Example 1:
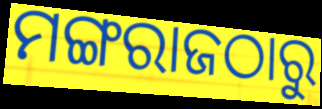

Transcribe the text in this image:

ମଙ୍ଗରାଜଠାରୁ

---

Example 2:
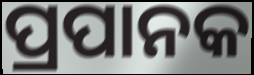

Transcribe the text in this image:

ପ୍ରପାନକ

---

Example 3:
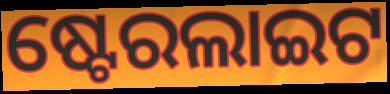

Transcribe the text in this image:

ଷ୍ଟେରଲାଇଟ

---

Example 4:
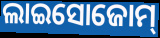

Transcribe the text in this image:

ଲାଇସୋଜୋମ୍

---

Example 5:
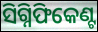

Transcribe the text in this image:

ସିଗ୍ନିଫିକେଣ୍ଟ